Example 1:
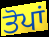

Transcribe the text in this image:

ਤੋਪਾਂ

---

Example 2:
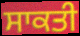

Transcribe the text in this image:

ਸਾਕਤੀ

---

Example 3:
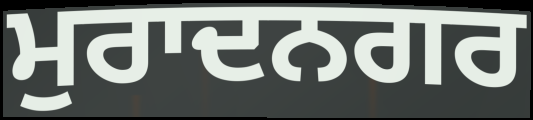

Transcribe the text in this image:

ਮੁਰਾਦਨਗਰ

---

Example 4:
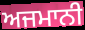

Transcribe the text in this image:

ਅਜਮਾਨੀ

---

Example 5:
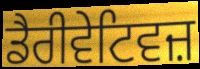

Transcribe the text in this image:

ਡੈਰੀਵੇਟਿਵਜ਼